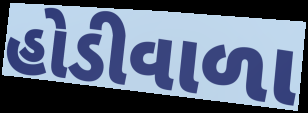
હોડીવાળા